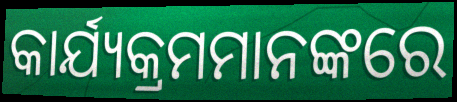
କାର୍ଯ୍ୟକ୍ରମମାନଙ୍କରେ